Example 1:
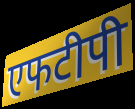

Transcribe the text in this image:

एफटीपी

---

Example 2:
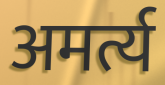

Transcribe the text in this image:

अमर्त्य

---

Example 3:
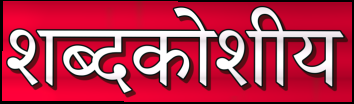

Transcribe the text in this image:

शब्दकोशीय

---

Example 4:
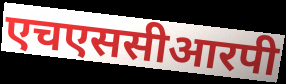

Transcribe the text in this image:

एचएससीआरपी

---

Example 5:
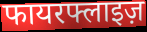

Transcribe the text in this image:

फायरफ्लाइज़